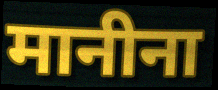
मानीना